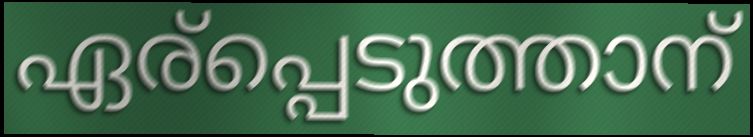
ഏര്പ്പെടുത്താന്